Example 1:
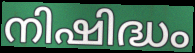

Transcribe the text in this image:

നിഷിദ്ധം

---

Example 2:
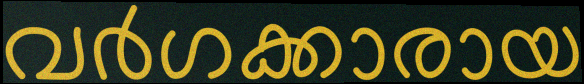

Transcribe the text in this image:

വർഗക്കാരായ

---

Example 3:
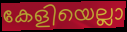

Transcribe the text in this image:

കേളിയെല്ലാ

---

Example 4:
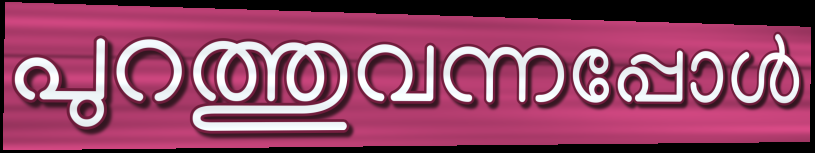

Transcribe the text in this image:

പുറത്തുവന്നപ്പോൾ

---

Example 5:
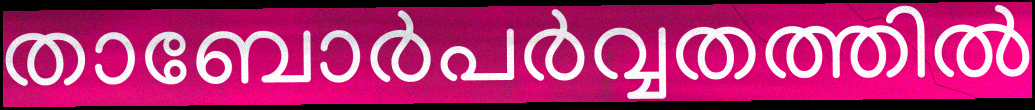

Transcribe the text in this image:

താബോർപർവ്വതത്തിൽ